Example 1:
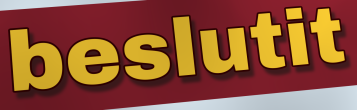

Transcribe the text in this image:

beslutit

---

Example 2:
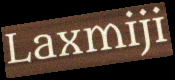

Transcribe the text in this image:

Laxmiji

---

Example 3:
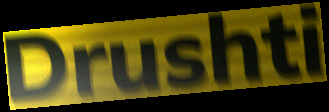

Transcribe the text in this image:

Drushti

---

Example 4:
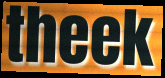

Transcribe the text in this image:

theek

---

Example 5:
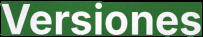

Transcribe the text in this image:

Versiones